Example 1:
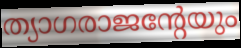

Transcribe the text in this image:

ത്യാഗരാജന്റേയും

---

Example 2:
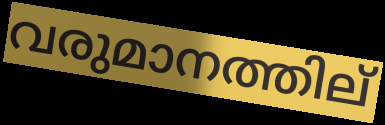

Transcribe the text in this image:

വരുമാനത്തില്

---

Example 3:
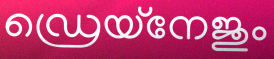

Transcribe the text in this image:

ഡ്രെയ്നേജും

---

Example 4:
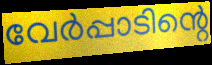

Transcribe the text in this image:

വേർപ്പാടിന്റെ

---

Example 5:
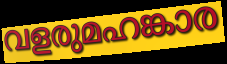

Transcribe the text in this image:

വളരുമഹങ്കാര